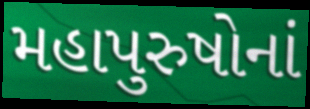
મહાપુરુષોનાં